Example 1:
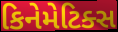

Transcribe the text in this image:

કિનેમેટિક્સ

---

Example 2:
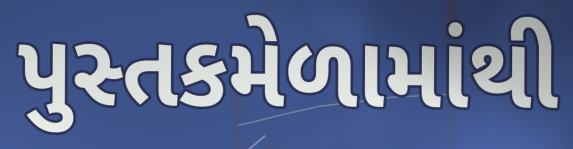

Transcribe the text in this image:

પુસ્તકમેળામાંથી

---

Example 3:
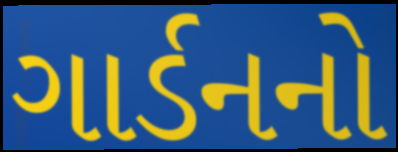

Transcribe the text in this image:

ગાર્ડનનો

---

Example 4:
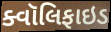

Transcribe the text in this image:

ક્વૉલિફાઇડ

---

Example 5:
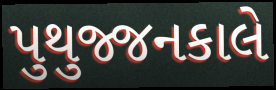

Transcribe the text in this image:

પુથુજ્જનકાલે